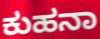
ಕುಹನಾ